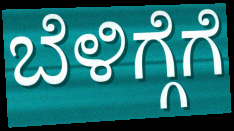
ಬೆಳಿಗ್ಗೆಗೆ